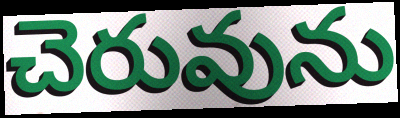
చెరువును